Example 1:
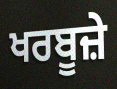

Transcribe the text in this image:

ਖਰਬੂਜ਼ੇ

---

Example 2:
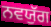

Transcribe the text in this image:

ਨਵਯੁੱਗ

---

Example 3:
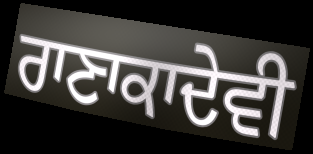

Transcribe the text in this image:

ਰਾਣਾਕਾਦੇਵੀ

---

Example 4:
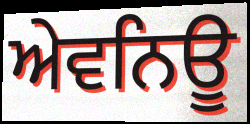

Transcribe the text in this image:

ਅੇਵਨਿਊ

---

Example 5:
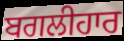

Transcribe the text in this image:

ਬਗਲੀਹਾਰ